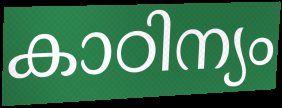
കാഠിന്യം